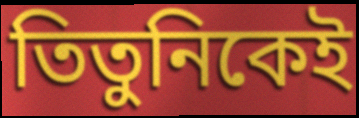
তিতুনিকেই